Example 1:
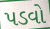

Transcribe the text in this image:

પડવો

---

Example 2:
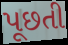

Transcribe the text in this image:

પૂછતી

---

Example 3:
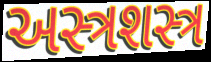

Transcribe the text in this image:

અસ્ત્રશસ્ત્ર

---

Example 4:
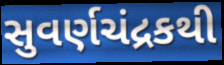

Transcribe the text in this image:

સુવર્ણચંદ્રકથી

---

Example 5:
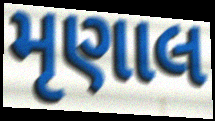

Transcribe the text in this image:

મૃણાલ